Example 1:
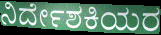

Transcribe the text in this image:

ನಿರ್ದೇಶಕಿಯರ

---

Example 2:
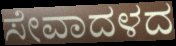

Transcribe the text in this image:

ಸೇವಾದಳದ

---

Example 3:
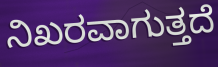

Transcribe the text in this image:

ನಿಖರವಾಗುತ್ತದೆ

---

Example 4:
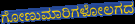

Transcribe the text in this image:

ಗೋಣುಮಾರಿಗಳೋಲಗದ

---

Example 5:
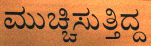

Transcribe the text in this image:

ಮುಚ್ಚಿಸುತ್ತಿದ್ದ